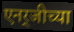
एनर्जीच्या